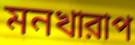
মনখারাপ